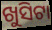
ଖୁସିଟା